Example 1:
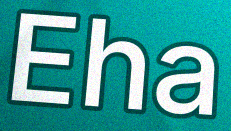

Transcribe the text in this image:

Eha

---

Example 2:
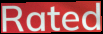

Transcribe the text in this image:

Rated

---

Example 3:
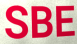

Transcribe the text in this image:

SBE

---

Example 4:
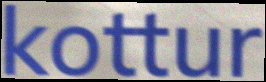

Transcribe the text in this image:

kottur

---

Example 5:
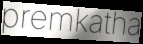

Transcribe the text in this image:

premkatha